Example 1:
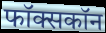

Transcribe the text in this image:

फॉक्सकॉन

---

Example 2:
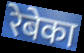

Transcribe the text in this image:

रेबेका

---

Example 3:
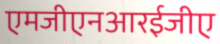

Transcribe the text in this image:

एमजीएनआरईजीए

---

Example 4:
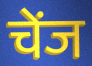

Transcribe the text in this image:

चेंज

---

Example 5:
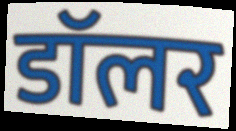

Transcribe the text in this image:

डॉलर